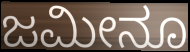
ಜಮೀನೂ